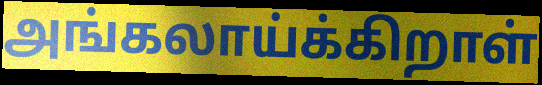
அங்கலாய்க்கிறாள்